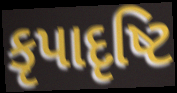
કૃપાદૃષ્ટિ